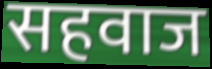
सहवाज